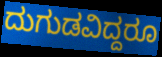
ದುಗುಡವಿದ್ದರೂ